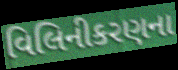
વિલિનીકરણના